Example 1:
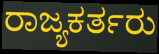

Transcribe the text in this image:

ರಾಜ್ಯಕರ್ತರು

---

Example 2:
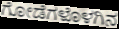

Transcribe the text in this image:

ಗೋಡೆಗಳೊಳಗಿನ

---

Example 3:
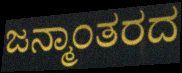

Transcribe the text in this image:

ಜನ್ಮಾಂತರದ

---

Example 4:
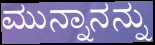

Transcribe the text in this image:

ಮುನ್ನಾನನ್ನು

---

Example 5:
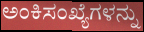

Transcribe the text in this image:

ಅಂಕಿಸಂಖ್ಯೆಗಳನ್ನು